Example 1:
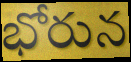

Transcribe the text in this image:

భోరున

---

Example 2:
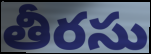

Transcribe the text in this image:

తీరసు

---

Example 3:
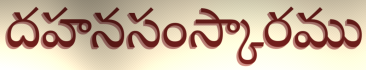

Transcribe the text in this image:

దహనసంస్కారము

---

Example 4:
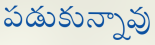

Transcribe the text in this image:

పడుకున్నావు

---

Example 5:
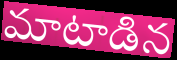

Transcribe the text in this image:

మాటాడిన